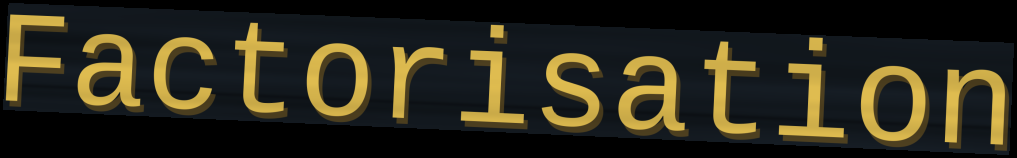
Factorisation